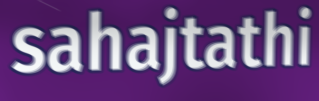
sahajtathi